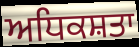
ਅਧਿਕਸ਼ਤਾ